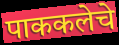
पाककलेचे